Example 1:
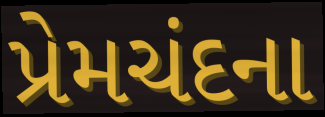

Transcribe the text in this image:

પ્રેમચંદના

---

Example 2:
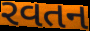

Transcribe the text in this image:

રવતન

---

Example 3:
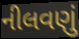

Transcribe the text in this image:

નીલવણું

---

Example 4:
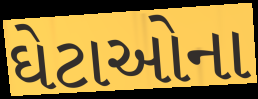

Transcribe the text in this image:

ઘેટાઓના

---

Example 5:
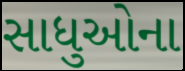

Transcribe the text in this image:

સાધુઓના